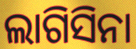
ଲାଗିସିନା